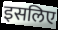
इसलिए